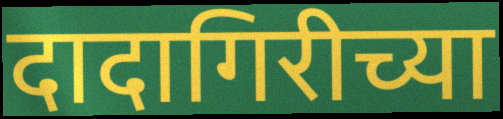
दादागिरीच्या